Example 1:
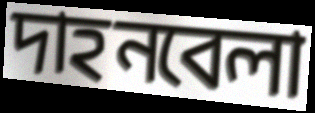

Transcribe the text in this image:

দাহনবেলা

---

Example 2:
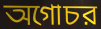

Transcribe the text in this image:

অগোচর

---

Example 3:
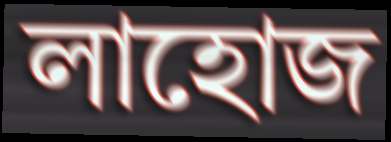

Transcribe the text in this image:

লাহোজ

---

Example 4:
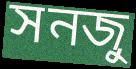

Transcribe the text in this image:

সনজু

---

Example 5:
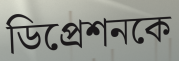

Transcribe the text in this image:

ডিপ্রেশনকে